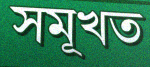
সমূখত